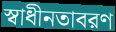
স্বাধীনতাবরণ